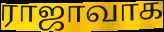
ராஜாவாக